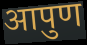
आपुण